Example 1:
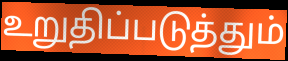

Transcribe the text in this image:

உறுதிப்படுத்தும்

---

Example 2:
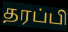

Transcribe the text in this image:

தரப்பி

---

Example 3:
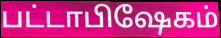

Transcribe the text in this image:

பட்டாபிஷேகம்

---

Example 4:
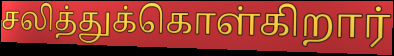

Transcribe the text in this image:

சலித்துக்கொள்கிறார்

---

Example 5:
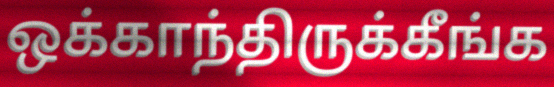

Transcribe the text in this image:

ஒக்காந்திருக்கீங்க